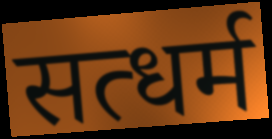
सत्धर्म